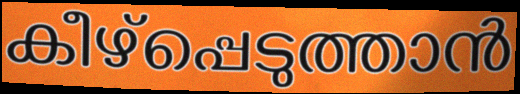
കീഴ്പ്പെടുത്താൻ